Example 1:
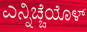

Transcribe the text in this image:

ಎನ್ನಿಚ್ಚೆಯೊಳ್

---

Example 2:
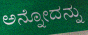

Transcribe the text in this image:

ಅನ್ನೋದನ್ನು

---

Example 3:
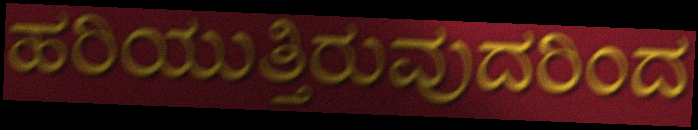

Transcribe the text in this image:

ಹರಿಯುತ್ತಿರುವುದರಿಂದ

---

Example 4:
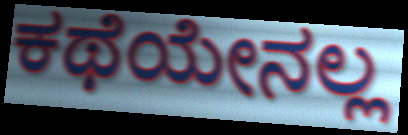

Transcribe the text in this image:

ಕಥೆಯೇನಲ್ಲ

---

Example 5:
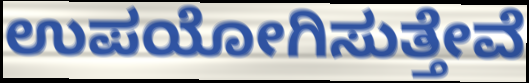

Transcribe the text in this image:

ಉಪಯೋಗಿಸುತ್ತೇವೆ